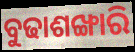
ବୁଢାଶଙ୍ଖାରି